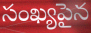
సంఖ్యపైన